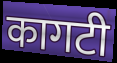
कागटी